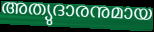
അത്യുദാരനുമായ